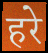
हरे